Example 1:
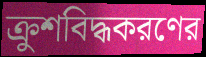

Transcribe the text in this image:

ক্রুশবিদ্ধকরণের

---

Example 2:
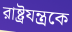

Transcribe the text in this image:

রাষ্ট্রযন্ত্রকে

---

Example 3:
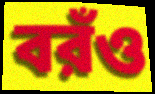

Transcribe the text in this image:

বরঁও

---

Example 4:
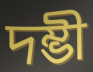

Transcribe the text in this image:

দম্ভী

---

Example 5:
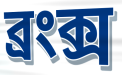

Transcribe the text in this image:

ব্রংক্স